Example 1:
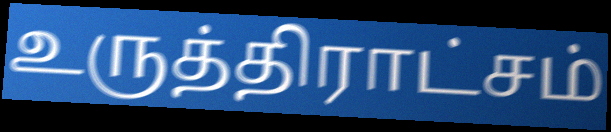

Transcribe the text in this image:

உருத்திராட்சம்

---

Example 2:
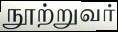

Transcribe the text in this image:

நூற்றுவர்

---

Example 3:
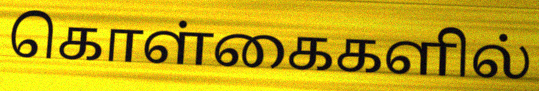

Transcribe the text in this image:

கொள்கைகளில்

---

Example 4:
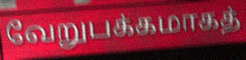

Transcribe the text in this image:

வேறுபக்கமாகத்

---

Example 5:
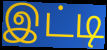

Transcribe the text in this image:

இட்டி